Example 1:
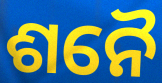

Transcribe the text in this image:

ଶନୈ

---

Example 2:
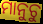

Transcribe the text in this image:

ମାନୁଚୁ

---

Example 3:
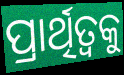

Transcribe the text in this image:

ପ୍ରାର୍ଥିତ୍ୱକୁ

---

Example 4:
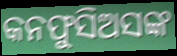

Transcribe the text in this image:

କନଫୁସିଅସଙ୍କ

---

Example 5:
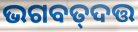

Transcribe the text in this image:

ଭଗବତ୍‌ଦତ୍ତ